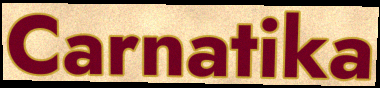
Carnatika